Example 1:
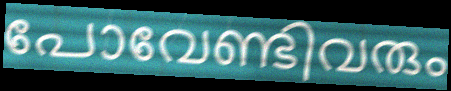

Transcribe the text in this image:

പോവേണ്ടിവരും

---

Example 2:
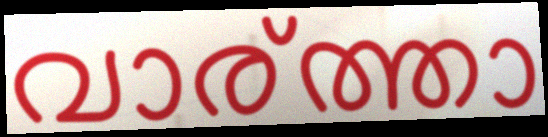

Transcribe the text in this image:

വാര്ത്താ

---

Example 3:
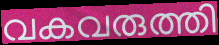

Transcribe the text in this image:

വകവരുത്തി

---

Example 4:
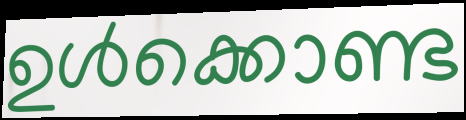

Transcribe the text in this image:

ഉൾക്കൊണ്ട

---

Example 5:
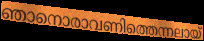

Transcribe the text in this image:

ഞാനൊരാവണിത്തെന്നലായ്